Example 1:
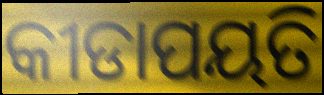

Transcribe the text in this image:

କୀଡାପୟତି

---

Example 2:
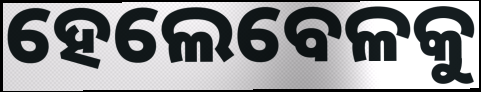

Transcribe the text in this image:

ହେଲେବେଳକୁ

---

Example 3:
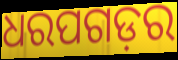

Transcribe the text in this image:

ଧରପଗଡ଼ର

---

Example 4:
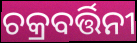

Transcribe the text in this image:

ଚକ୍ରବର୍ତ୍ତିନୀ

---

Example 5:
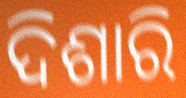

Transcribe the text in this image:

ଦିଶାରି